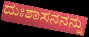
ದುಃಶಾಸನನನ್ನು